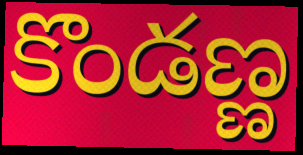
కొండణ్ణ